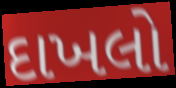
દાખલો